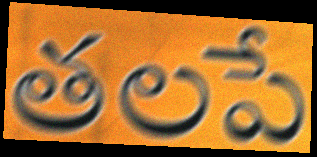
తలపే